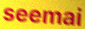
seemai